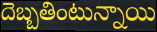
దెబ్బతింటున్నాయి